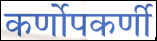
कर्णोपकर्णी